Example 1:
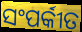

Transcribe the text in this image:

ସଂପର୍କୀତ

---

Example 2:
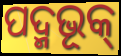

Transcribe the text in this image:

ପଦ୍ମଭୂକ୍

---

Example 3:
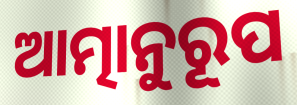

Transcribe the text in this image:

ଆତ୍ମାନୁରୂପ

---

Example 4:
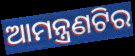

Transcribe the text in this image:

ଆମନ୍ତ୍ରଣଟିର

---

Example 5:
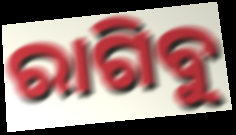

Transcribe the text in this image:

ରାଗିବୁ